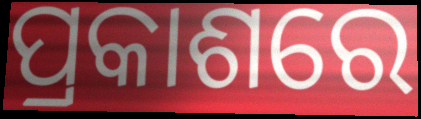
ପ୍ରକାଶରେ